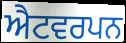
ਐਟਵਰਪਨ